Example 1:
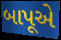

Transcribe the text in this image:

બાપૂએ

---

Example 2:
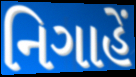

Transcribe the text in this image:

નિગાહેં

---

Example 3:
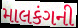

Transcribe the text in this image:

માલકંગની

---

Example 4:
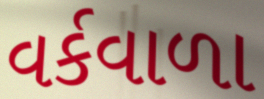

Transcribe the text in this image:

વર્કવાળા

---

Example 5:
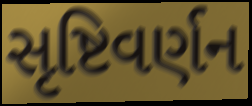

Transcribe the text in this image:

સૃષ્ટિવર્ણન